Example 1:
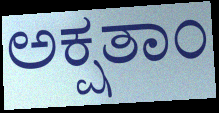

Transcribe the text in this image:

ಅಕ್ಷತಾಂ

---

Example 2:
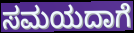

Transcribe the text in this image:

ಸಮಯದಾಗೆ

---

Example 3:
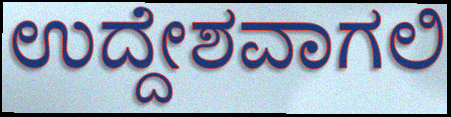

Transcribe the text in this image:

ಉದ್ದೇಶವಾಗಲಿ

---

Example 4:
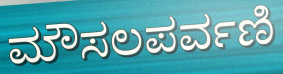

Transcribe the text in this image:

ಮೌಸಲಪರ್ವಣಿ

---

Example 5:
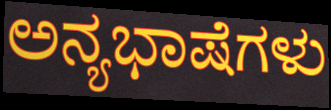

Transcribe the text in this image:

ಅನ್ಯಭಾಷೆಗಳು